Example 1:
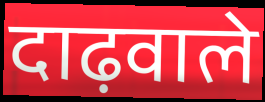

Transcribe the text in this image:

दाढ़वाले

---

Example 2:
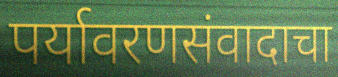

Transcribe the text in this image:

पर्यावरणसंवादाचा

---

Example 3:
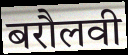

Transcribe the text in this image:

बरौलवी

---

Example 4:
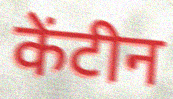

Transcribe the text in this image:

केंटीन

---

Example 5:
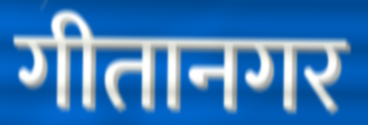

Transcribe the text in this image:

गीतानगर